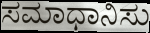
ಸಮಾಧಾನಿಸು